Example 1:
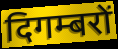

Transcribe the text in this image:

दिगम्बरों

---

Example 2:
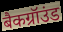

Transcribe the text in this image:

बैकग्रॉउंड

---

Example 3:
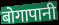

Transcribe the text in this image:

बोगापानी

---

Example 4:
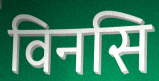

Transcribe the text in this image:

विनसि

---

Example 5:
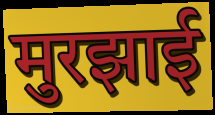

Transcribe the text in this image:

मुरझाई